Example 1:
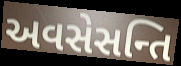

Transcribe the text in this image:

અવસેસન્તિ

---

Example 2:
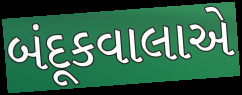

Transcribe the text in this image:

બંદૂકવાલાએ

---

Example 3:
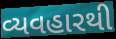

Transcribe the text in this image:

વ્યવહારથી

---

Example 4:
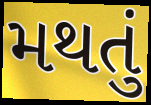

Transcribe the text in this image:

મથતું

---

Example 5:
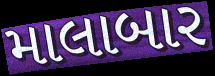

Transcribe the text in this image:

માલાબાર